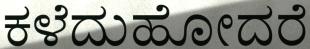
ಕಳೆದುಹೋದರೆ